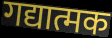
गद्यात्मक